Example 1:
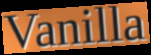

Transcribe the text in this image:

Vanilla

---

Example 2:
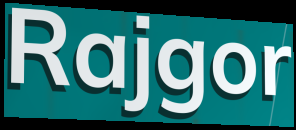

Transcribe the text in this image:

Rajgor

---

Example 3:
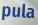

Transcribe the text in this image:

pula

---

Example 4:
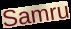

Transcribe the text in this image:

Samru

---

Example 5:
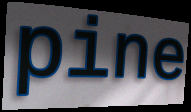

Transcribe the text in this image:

pine